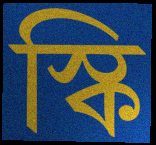
স্কি